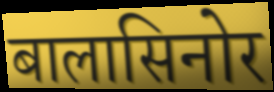
बालासिनोर